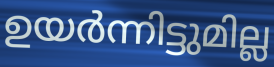
ഉയർന്നിട്ടുമില്ല